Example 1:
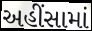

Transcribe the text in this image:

અહીંસામાં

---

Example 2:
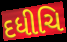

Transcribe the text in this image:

દધીચિ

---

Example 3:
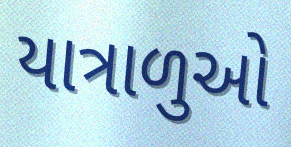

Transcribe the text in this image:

યાત્રાળુઓ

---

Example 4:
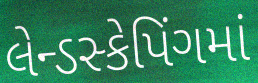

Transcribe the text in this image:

લેન્ડસ્કેપિંગમાં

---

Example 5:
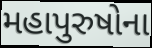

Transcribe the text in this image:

મહાપુરુષોના